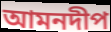
আমনদীপ